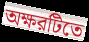
অক্ষরটিতে